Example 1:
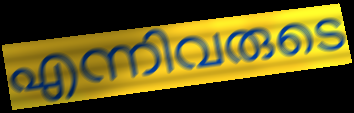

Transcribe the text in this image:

എന്നിവരുടെ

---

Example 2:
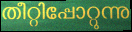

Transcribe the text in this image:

തീറ്റിപ്പോറ്റുന്നു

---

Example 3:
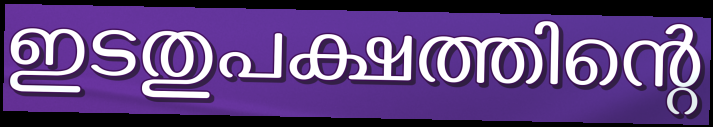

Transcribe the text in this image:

ഇടതുപക്ഷത്തിന്റെ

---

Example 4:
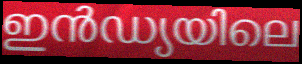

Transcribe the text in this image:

ഇൻഡ്യയിലെ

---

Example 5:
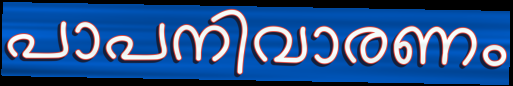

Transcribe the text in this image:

പാപനിവാരണം